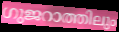
ഗുജറാത്തിലും